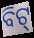
ବିଟ୍